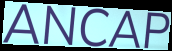
ANCAP